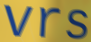
vrs